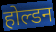
होल्डन